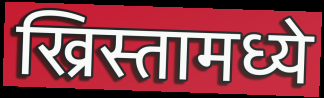
ख्रिस्तामध्ये